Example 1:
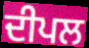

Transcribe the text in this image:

ਦੀਪਲ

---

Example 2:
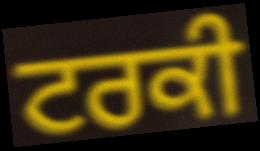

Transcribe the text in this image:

ਟਰਕੀ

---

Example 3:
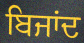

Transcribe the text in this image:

ਬਿਜਾਂਦ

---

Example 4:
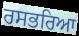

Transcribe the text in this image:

ਰਸਭਰਿਆ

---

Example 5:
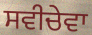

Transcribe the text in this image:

ਸਵੀਚੇਵਾ